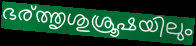
ഭര്ത്തൃശുശ്രൂഷയിലും